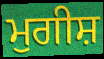
ਮੁਗੀਸ਼